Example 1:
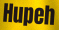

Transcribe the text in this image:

Hupeh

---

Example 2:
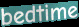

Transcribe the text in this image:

bedtime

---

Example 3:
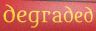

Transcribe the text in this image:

degraded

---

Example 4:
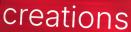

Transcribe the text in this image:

creations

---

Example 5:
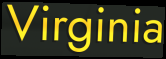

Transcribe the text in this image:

Virginia